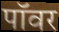
पॉवर